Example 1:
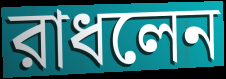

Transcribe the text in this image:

রাধলেন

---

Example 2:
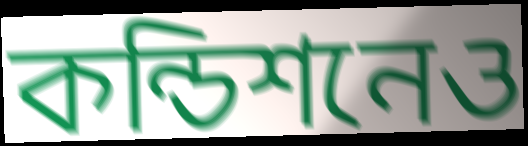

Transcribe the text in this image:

কন্ডিশনেও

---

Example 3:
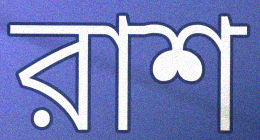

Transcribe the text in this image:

রাশ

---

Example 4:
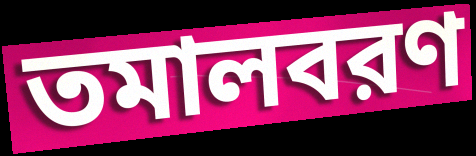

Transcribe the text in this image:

তমালবরণ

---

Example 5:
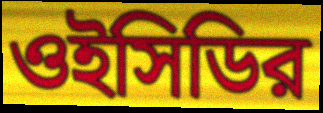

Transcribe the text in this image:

ওইসিডির